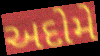
અદોમે